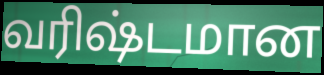
வரிஷ்டமான